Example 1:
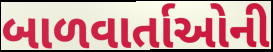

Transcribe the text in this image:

બાળવાર્તાઓની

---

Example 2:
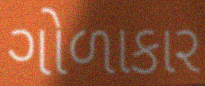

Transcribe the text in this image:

ગોળાકાર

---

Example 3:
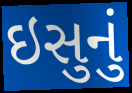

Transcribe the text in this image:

ઇસુનું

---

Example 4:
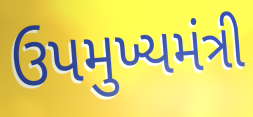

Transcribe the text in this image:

ઉપમુખ્યમંત્રી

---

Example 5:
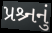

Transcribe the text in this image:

પ્રશ્ર્નનું